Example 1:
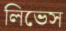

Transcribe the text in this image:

লিভেস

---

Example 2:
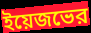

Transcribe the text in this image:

ইয়েজভের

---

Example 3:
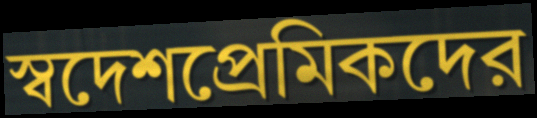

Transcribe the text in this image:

স্বদেশপ্রেমিকদের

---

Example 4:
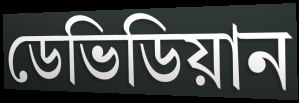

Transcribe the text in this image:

ডেভিডিয়ান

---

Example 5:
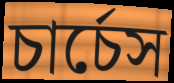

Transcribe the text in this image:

চার্চেস